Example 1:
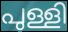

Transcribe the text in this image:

പുള്ളി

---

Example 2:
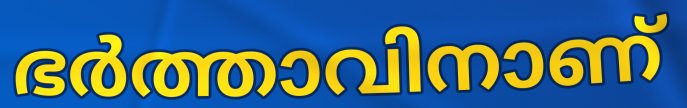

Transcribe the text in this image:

ഭർത്താവിനാണ്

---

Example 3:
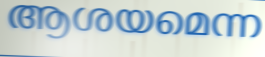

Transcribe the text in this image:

ആശയമെന്ന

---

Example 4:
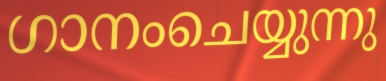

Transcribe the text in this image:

ഗാനംചെയ്യുന്നു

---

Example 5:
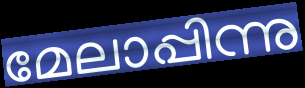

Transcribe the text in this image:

മേലാപ്പിന്നു